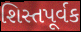
શિસ્તપૂર્વક